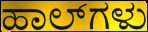
ಹಾಲ್‌ಗಳು